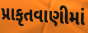
પ્રાકૃતવાણીમાં